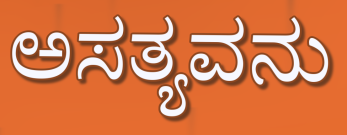
ಅಸತ್ಯವನು